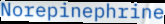
Norepinephrine